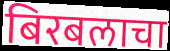
बिरबलाचा